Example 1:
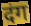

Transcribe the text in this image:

दंग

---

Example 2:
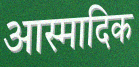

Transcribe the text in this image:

आस्मादिक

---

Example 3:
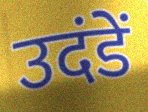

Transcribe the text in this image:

उदंडें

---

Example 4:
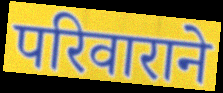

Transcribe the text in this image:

परिवाराने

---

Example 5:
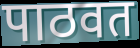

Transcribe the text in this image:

पाठवत